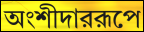
অংশীদাররূপে